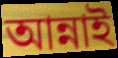
আন্নাই